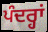
ਪੰਦਰ੍ਹਾਂ